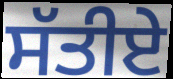
ਸੱਤੀਏ